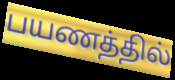
பயணத்தில்